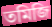
তমিজি